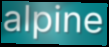
alpine